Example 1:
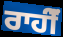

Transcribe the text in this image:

ਰਾਹੀਂੰ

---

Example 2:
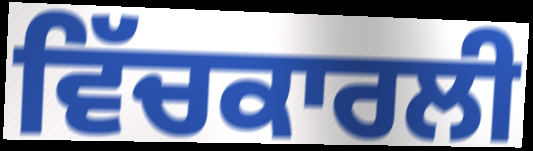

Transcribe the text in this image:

ਵਿੱਚਕਾਰਲੀ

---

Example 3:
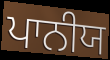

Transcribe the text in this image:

ਪਾਨੀਯ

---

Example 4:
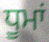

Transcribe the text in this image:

ਧੂਮਾਂ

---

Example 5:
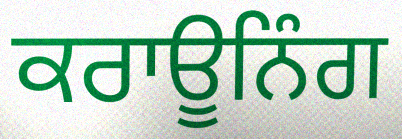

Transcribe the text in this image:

ਕਰਾਊਨਿੰਗ